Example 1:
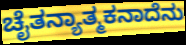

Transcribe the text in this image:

ಚೈತನ್ಯಾತ್ಮಕನಾದೆನು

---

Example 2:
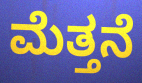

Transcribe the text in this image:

ಮೆತ್ತನೆ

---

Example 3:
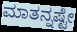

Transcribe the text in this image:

ಮಾತನ್ನಷ್ಟೇ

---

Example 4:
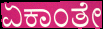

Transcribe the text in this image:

ಏಕಾಂತೇ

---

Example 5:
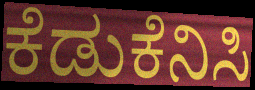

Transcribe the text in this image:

ಕೆಡುಕೆನಿಸಿ